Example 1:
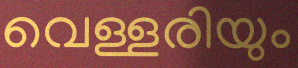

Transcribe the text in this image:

വെള്ളരിയും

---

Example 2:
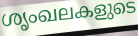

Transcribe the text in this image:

ശൃംഖലകളുടെ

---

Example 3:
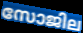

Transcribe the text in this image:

സോജില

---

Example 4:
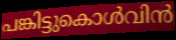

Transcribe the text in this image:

പങ്കിട്ടുകൊൾവിൻ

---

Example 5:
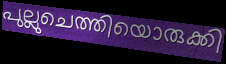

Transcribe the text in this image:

പുല്ലുചെത്തിയൊരുക്കി